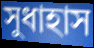
সুধাহাস